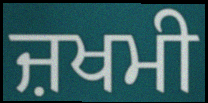
ਜ਼ਖਮੀ